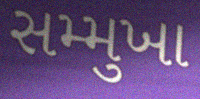
સમ્મુખા